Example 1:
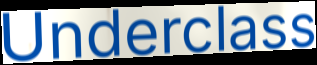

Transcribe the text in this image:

Underclass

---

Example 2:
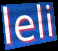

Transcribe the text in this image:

leli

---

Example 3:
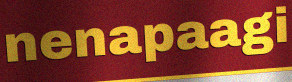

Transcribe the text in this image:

nenapaagi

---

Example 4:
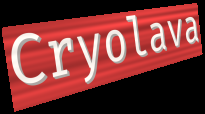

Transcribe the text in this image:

Cryolava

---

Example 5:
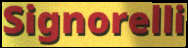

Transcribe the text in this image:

Signorelli